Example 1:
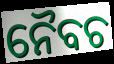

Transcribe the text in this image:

ନୈବଚ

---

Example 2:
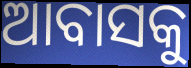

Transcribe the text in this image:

ଆବାସକୁ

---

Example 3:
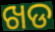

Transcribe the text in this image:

ଖଡ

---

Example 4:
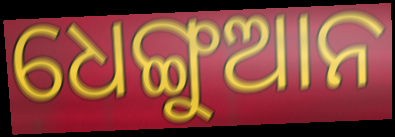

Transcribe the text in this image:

ଧେଙ୍ଗୁଆନ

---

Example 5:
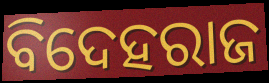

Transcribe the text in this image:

ବିଦେହରାଜ